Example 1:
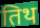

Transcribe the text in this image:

तिथ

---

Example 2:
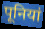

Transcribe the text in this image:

पूनियां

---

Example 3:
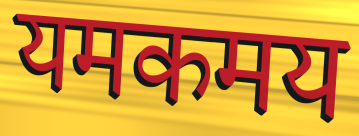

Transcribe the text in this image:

यमकमय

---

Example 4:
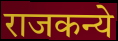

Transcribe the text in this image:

राजकन्ये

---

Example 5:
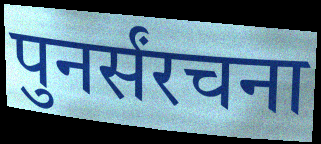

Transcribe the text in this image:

पुनर्संरचना